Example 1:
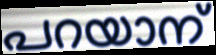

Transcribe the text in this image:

പറയാന്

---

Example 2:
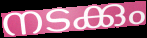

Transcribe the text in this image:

നടക്കും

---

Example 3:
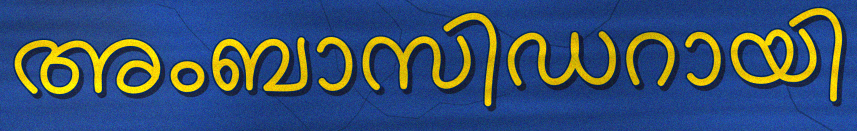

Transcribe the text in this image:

അംബാസിഡറായി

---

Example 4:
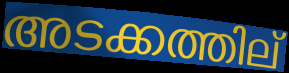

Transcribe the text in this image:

അടക്കത്തില്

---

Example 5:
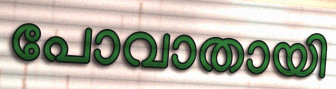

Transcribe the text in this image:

പോവാതായി